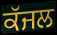
ਕੱਜਲ